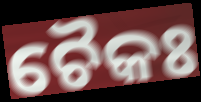
ଚୈକଃ